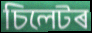
চিলেটৰ